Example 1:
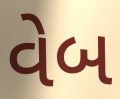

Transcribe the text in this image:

વેબ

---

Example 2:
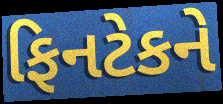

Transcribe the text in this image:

ફિનટેકને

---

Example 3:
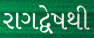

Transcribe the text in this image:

રાગદ્વેષથી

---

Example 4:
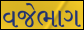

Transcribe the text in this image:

વજેભાગ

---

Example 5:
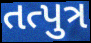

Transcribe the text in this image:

તત્પુત્ર